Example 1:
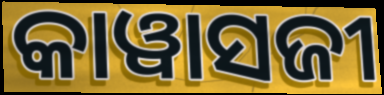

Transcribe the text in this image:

କାୱାସଜୀ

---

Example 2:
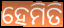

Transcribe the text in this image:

ହେମିତି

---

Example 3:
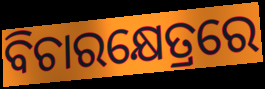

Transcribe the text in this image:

ବିଚାରକ୍ଷେତ୍ରରେ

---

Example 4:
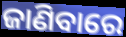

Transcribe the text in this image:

ଜାଣିବାରେ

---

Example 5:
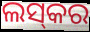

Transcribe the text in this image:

ଲସ୍‌କର